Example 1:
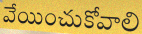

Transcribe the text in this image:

వేయించుకోవాలి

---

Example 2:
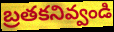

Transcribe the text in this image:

బ్రతకనివ్వండి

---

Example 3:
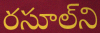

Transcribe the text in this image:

రసూల్‌ని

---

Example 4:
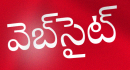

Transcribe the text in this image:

వెబ్‌సైట్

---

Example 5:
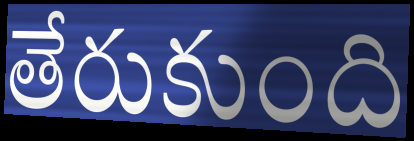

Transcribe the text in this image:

తేరుకుంది